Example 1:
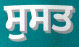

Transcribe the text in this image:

ਸੁਸਤ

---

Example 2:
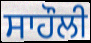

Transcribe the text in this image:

ਸਾਹੌਲੀ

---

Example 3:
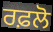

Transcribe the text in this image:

ਰਫ਼ਲੋ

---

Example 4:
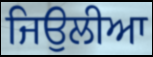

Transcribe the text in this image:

ਜਿਉਲੀਆ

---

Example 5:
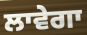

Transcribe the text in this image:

ਲਾਵੇਗਾ